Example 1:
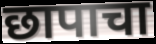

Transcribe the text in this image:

छापाचा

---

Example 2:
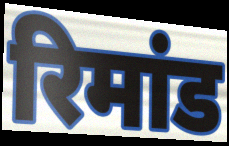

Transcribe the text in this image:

रिमांड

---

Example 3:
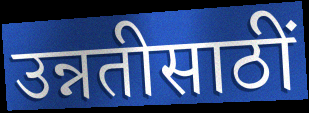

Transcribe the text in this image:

उन्नतीसाठीं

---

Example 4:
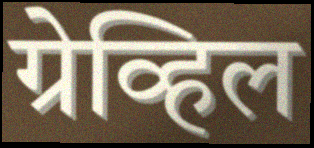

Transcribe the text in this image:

ग्रेव्हिल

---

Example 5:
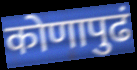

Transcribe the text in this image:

कोणापुढं